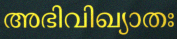
അഭിവിഖ്യാതഃ